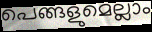
പെങ്ങളുമെല്ലാം